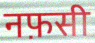
नफ़सी